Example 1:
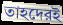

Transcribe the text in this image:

তাহদেরই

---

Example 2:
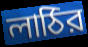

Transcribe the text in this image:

লাঠির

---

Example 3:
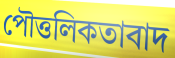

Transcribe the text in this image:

পৌত্তলিকতাবাদ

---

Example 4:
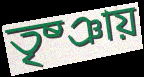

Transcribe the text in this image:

তৃষ্ঞায়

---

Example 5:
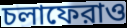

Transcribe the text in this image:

চলাফেরাও